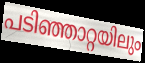
പടിഞ്ഞാറ്റയിലും